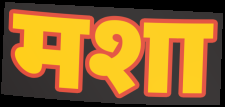
मशा